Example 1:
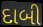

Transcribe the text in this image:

દાબી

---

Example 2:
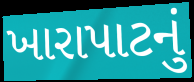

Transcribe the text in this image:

ખારાપાટનું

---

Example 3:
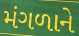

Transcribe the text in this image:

મંગળાને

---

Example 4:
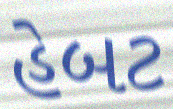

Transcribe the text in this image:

હેબટ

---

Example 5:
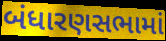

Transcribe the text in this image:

બંધારણસભામાં